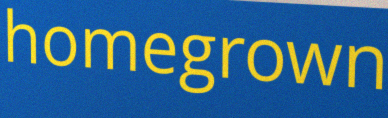
homegrown